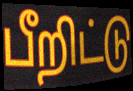
பீறிட்டு